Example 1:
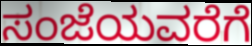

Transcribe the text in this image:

ಸಂಜೆಯವರೆಗೆ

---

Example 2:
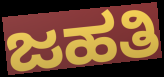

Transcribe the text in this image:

ಜಹತಿ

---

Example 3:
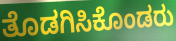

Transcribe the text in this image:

ತೊಡಗಿಸಿಕೊಂಡರು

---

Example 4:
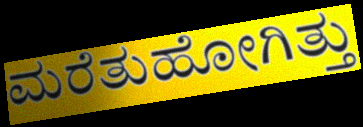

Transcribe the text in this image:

ಮರೆತುಹೋಗಿತ್ತು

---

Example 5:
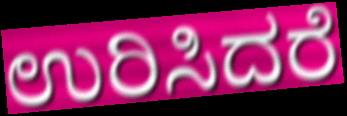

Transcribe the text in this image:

ಉರಿಸಿದರೆ